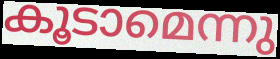
കൂടാമെന്നു